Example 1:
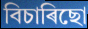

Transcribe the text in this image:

বিচাৰিছো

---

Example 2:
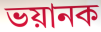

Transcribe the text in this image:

ভয়ানক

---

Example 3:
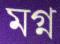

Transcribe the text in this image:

মগ্ন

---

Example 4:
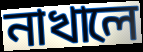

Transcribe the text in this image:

নাখালে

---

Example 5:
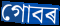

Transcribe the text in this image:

গোবৰ